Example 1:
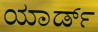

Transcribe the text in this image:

ಯಾರ್ಡ್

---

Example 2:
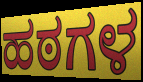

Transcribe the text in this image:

ಹಠಗಳ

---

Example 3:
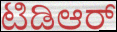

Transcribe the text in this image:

ಟಿಡಿಆರ್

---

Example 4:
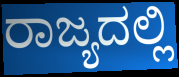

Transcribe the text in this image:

ರಾಜ್ಯದಲ್ಲಿ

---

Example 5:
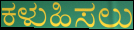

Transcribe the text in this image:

ಕಳುಹಿಸಲು